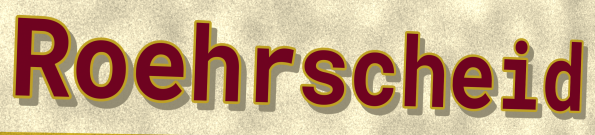
Roehrscheid